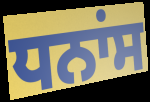
ਧਨਾਂਸ